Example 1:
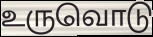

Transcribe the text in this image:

உருவொடு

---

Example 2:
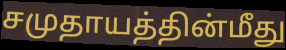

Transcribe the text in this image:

சமுதாயத்தின்மீது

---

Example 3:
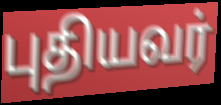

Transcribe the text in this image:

புதியவர்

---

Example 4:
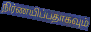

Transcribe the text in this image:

நிர்ணயிப்பதாகவும்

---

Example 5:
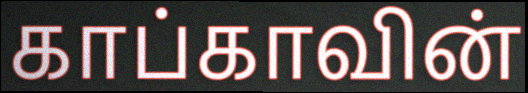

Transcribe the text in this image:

காப்காவின்